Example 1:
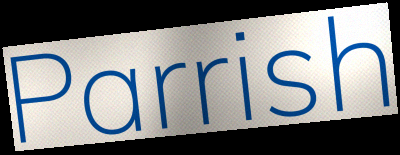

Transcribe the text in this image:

Parrish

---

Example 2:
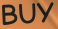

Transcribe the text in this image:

BUY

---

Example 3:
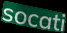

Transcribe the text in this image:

socati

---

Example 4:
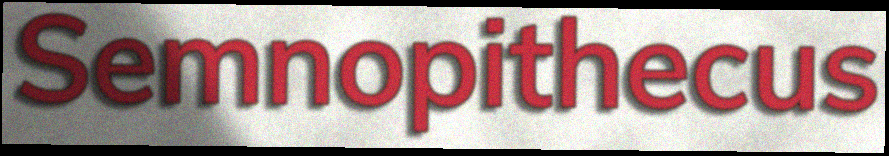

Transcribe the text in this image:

Semnopithecus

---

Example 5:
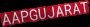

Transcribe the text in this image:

AAPGUJARAT